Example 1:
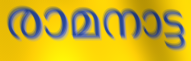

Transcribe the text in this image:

രാമനാട്ട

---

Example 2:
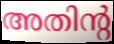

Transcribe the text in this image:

അതിന്റ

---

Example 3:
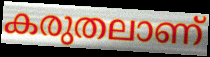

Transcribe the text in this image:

കരുതലാണ്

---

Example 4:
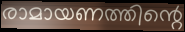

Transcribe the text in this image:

രാമായണത്തിന്റെ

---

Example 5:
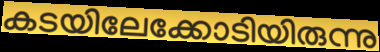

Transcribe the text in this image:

കടയിലേക്കോടിയിരുന്നു